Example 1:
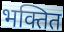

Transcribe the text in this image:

भक्तित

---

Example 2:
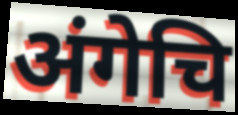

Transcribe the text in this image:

अंगेचि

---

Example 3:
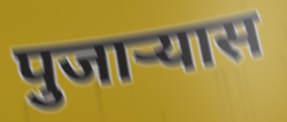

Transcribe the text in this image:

पुजाऱ्यास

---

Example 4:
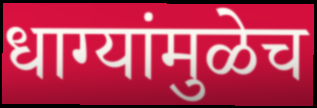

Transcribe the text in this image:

धाग्यांमुळेच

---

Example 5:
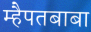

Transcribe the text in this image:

म्हैपतबाबा